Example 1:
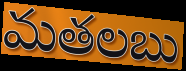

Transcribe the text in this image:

మతలబు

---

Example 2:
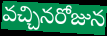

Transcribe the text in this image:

వచ్చినరోజున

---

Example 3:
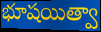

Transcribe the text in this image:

భూషయిత్వా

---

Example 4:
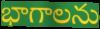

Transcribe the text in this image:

భాగాలను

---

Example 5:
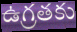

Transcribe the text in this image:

ఉగ్రతకు